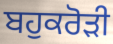
ਬਹੁਕਰੋਡ਼ੀ